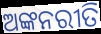
ଅଙ୍କନରୀତି